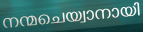
നന്മചെയ്വാനായി